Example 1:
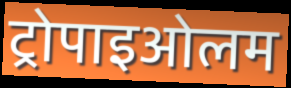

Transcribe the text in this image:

ट्रोपाइओलम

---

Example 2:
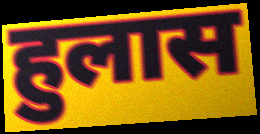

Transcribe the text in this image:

हुलास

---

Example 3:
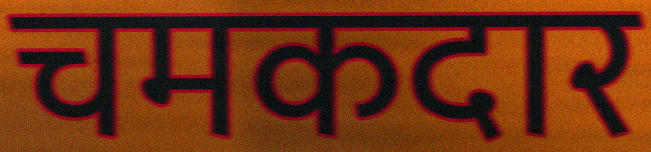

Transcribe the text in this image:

चमकदार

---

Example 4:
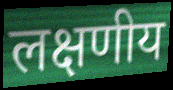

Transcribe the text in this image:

लक्षणीय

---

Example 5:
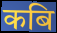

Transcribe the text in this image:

कबि